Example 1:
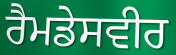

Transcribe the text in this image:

ਰੈਮਡੇਸਵੀਰ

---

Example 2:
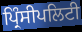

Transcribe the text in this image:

ਪ੍ਰਿੰਸੀਪਲਿਟੀ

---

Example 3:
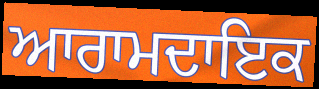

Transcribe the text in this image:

ਆਰਾਮਦਾਇਕ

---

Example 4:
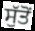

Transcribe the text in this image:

ਸੁੱਤੋਂ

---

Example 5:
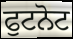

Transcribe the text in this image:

ਫੁਟਨੋਟ